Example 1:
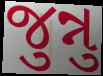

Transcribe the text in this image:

જુન્નુ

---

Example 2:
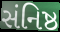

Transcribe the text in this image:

સંનિષ્ઠ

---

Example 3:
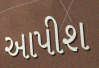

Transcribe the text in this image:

આપીશ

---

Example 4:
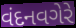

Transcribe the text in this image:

વંદનવગેરે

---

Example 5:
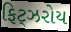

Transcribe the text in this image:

ફિટ્ઝરોય